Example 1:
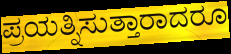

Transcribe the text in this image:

ಪ್ರಯತ್ನಿಸುತ್ತಾರಾದರೂ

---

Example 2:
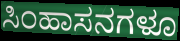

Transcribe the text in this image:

ಸಿಂಹಾಸನಗಳೂ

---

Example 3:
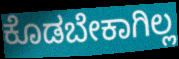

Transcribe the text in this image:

ಕೊಡಬೇಕಾಗಿಲ್ಲ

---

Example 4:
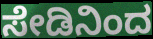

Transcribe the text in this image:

ಸೇಡಿನಿಂದ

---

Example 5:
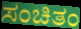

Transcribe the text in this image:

ಸಂಚಿತಂ